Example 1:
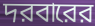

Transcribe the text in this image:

দরবারের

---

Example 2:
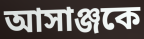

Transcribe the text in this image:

আসাঞ্জকে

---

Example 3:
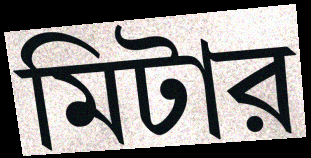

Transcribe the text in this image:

মিটার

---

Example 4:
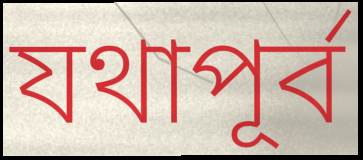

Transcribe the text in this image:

যথাপূর্ব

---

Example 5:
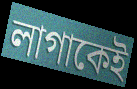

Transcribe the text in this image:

লাগাকেই